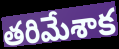
తరిమేశాక